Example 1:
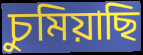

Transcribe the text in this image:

চুমিয়াছি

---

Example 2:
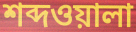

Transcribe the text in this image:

শব্দওয়ালা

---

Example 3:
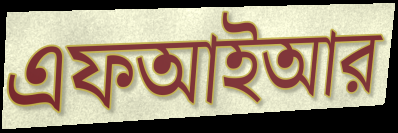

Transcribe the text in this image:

এফআইআর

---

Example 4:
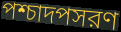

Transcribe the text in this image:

পশ্চাদপসরণ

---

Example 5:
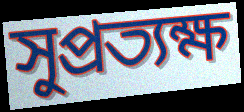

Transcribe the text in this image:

সুপ্রত্যক্ষ